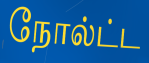
நோல்ட்ட